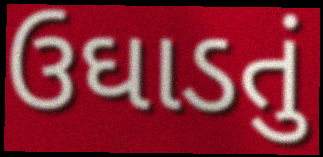
ઉઘાડતું